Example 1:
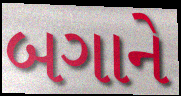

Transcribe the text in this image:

બગાને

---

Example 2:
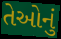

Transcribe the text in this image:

તેઓનું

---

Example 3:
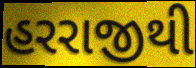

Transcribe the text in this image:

હરરાજીથી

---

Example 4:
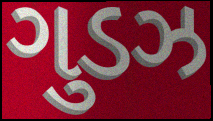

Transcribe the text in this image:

ગુડઝ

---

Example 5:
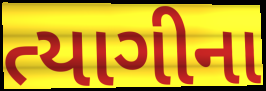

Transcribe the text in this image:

ત્યાગીના